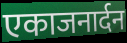
एकाजनार्दन